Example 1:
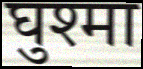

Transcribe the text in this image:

घुश्मा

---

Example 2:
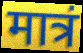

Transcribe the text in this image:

मात्रं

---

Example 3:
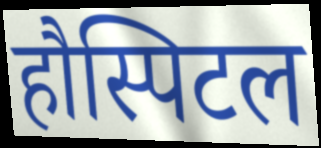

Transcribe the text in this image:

हौस्पिटल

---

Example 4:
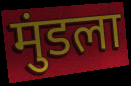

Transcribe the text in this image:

मुंडला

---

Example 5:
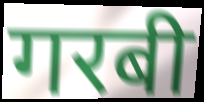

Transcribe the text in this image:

गरबी